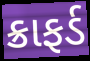
ક્રાફર્ડ